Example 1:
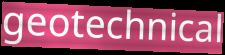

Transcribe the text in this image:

geotechnical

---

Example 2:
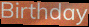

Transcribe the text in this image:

Birthday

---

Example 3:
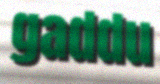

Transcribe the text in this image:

gaddu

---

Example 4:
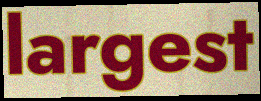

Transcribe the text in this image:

largest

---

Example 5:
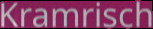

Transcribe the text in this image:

Kramrisch